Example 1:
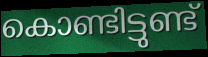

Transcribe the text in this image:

കൊണ്ടിട്ടുണ്ട്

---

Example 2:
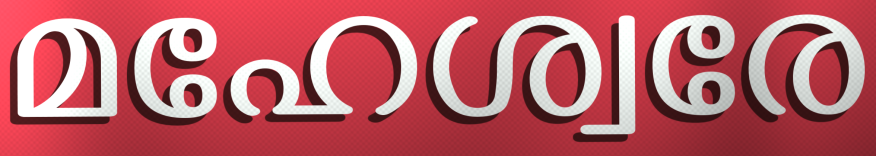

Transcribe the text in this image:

മഹേശ്വരേ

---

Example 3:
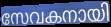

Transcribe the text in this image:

സേവകനായി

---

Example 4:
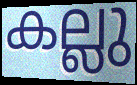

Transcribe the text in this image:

കല്ലു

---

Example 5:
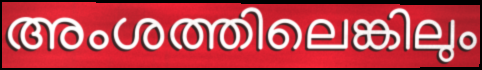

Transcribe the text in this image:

അംശത്തിലെങ്കിലും